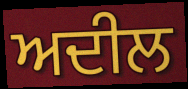
ਅਦੀਲ